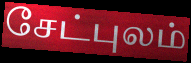
சேட்புலம்